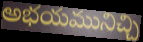
అభయమునిచ్చి